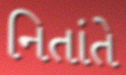
નિતાંતે